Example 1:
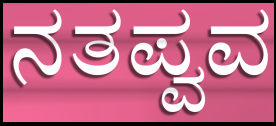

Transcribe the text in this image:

ನತಪ್ವವ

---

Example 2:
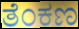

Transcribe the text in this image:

ತೆಂಕಣ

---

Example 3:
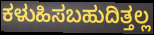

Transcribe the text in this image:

ಕಳುಹಿಸಬಹುದಿತ್ತಲ್ಲ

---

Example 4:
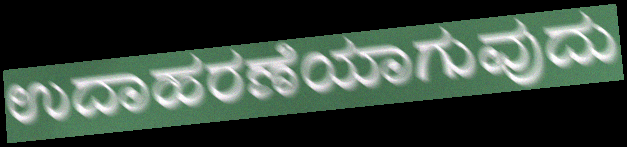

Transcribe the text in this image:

ಉದಾಹರಣೆಯಾಗುವುದು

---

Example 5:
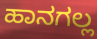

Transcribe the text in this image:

ಹಾನಗಲ್ಲ